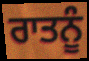
ਰਾਤਨੂੰ